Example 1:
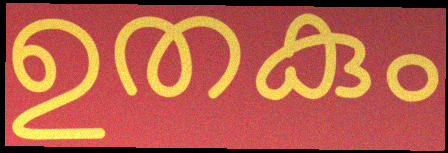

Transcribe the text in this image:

ഉതകും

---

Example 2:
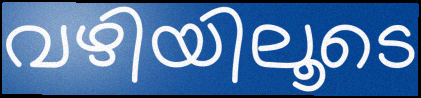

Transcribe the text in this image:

വഴിയിലൂടെ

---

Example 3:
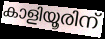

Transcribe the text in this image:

കാളിയൂരിന്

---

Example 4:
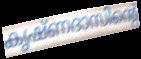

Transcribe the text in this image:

കൃഷ്ണദാസിന്റെ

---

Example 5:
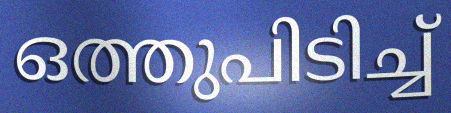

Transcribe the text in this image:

ഒത്തുപിടിച്ച്